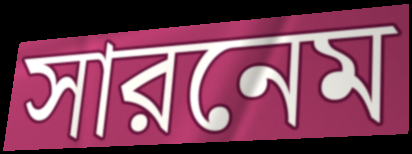
সারনেম